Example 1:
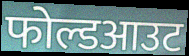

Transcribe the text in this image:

फोल्डआउट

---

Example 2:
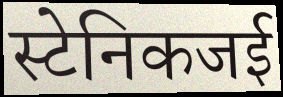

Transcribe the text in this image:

स्टेनिकजई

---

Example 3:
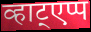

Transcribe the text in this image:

व्हाट्एप्प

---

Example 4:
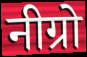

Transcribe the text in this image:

नीग्रो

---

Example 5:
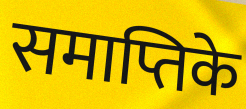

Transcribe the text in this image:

समाप्तिके